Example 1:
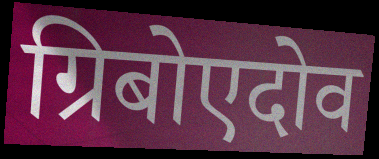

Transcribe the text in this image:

ग्रिबोएदोव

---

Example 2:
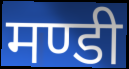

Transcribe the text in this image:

मण्डी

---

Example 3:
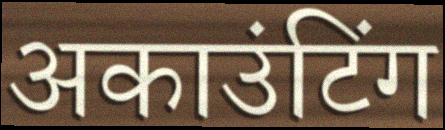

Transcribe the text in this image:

अकाउंटिंग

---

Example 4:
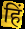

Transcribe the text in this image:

हिं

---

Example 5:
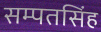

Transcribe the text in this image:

सम्पतसिंह